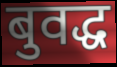
बुवद्ध